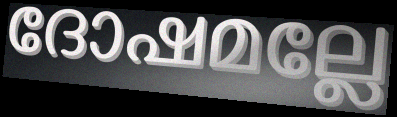
ദോഷമല്ലേ